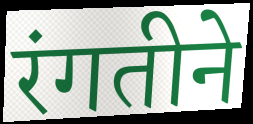
रंगतीने